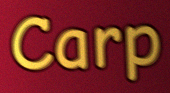
Carp